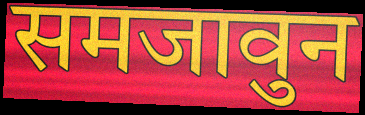
समजावुन